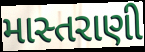
માસ્તરાણી